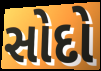
સોદો